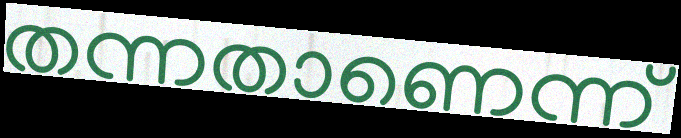
തന്നതാണെന്ന്